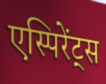
एस्पिरेंट्स